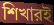
শিখারই